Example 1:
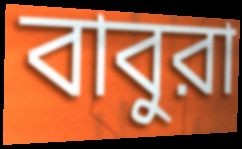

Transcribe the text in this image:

বাবুরা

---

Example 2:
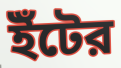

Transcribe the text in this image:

ইঁটের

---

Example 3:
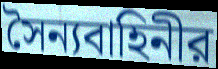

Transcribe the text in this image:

সৈন্যবাহিনীর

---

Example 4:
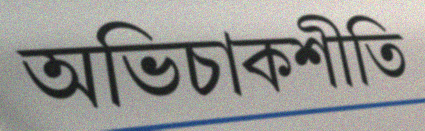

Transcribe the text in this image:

অভিচাকশীতি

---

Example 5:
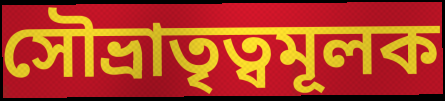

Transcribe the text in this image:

সৌভ্রাতৃত্বমূলক